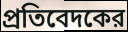
প্রতিবেদকের